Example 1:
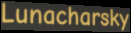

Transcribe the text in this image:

Lunacharsky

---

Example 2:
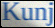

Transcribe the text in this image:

Kunj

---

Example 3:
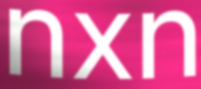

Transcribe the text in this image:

nxn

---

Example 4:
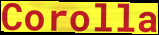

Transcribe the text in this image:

Corolla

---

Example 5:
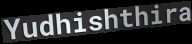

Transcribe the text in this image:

Yudhishthira